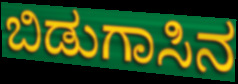
ಬಿಡುಗಾಸಿನ